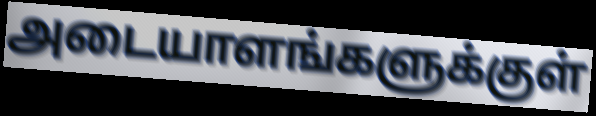
அடையாளங்களுக்குள்